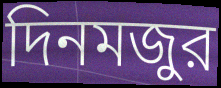
দিনমজুর